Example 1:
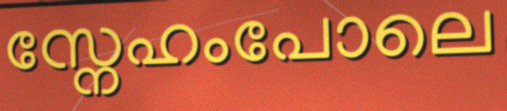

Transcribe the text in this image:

സ്നേഹംപോലെ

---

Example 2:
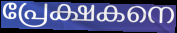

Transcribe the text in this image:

പ്രേക്ഷകനെ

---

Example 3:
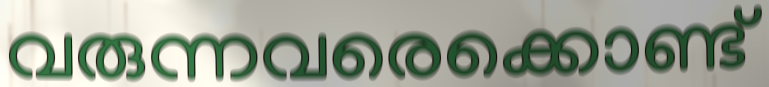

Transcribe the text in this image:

വരുന്നവരെക്കൊണ്ട്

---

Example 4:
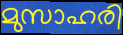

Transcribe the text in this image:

മുസാഹരി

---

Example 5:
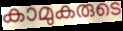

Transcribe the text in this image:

കാമുകരുടെ